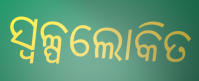
ସ୍ୱଳ୍ପଲୋକିତ